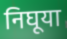
निघूया